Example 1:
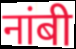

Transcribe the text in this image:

नांबी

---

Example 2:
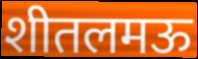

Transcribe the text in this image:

शीतलमऊ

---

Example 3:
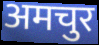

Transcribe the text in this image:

अमचुर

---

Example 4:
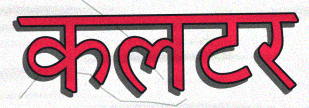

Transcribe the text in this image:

कलटर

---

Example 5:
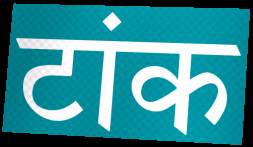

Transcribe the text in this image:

टांक